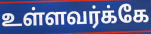
உள்ளவர்க்கே